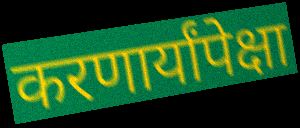
करणार्यांपेक्षा